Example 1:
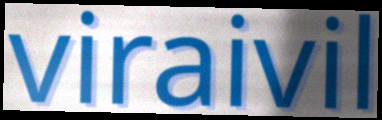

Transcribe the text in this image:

viraivil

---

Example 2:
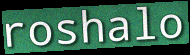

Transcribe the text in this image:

roshalo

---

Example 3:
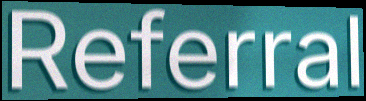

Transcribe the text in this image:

Referral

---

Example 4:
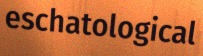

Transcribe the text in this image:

eschatological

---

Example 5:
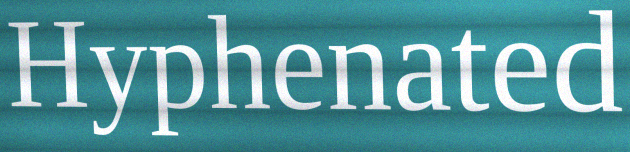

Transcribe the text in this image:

Hyphenated